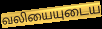
வலியையுடைய